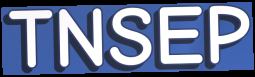
TNSEP